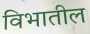
विभातील